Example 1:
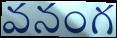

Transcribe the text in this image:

వనంగ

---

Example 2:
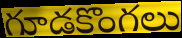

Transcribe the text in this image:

గూడకొంగలు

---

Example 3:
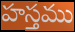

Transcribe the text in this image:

హస్తము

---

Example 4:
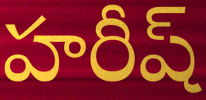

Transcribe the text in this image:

హరీష్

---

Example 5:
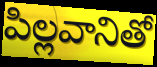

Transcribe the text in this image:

పిల్లవానితో